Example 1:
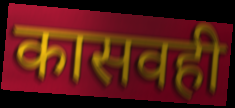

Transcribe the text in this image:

कासवही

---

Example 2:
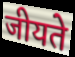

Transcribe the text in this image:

जीयते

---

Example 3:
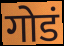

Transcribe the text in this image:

गोडं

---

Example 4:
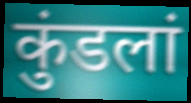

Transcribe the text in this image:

कुंडलां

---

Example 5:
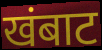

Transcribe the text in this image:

खंबाट